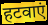
हटवाएं